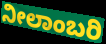
ನೀಲಾಂಬರಿ